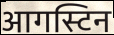
आगस्टिन